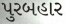
પુરબહાર